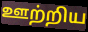
ஊற்றிய